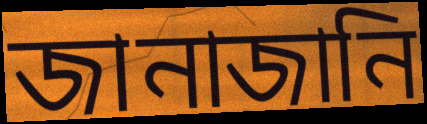
জানাজানি